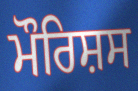
ਮੌਰਿਸ਼ਸ